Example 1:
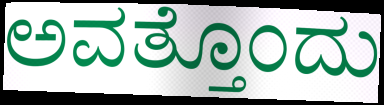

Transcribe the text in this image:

ಅವತ್ತೊಂದು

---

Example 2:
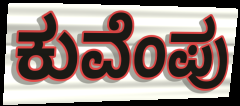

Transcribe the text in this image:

ಕುವೆಂಪು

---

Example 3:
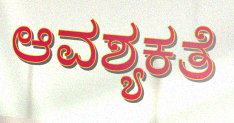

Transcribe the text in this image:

ಆವಶ್ಯಕತೆ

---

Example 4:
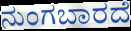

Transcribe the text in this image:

ನುಂಗಬಾರದೆ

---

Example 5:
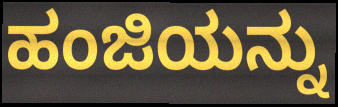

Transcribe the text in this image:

ಹಂಜಿಯನ್ನು